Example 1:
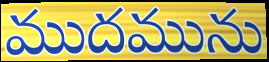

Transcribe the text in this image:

ముదమును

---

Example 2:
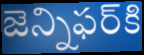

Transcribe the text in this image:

జెన్నిఫర్‌కి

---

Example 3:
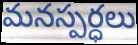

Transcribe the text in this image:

మనస్పర్ధలు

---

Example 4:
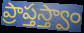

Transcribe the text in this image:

ప్రాప్తస్త్వాం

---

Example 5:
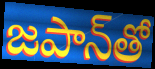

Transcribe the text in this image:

జపాన్‌తో